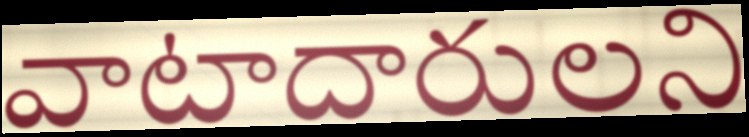
వాటాదారులని